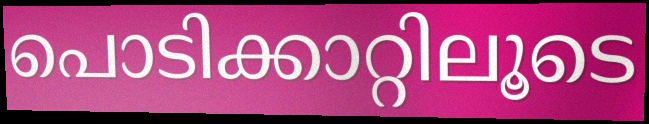
പൊടിക്കാറ്റിലൂടെ